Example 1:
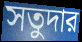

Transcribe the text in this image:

সতুদার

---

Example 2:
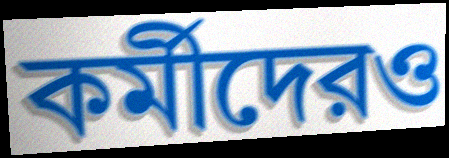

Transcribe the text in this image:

কর্মীদেরও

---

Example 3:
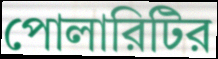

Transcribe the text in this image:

পোলারিটির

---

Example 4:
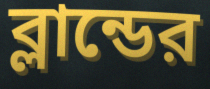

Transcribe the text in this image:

ব্লান্ডের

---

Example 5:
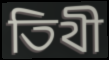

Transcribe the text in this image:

তিথী